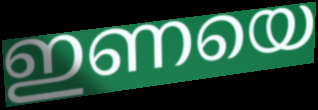
ഇണയെ